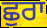
ਛੁਰਾ